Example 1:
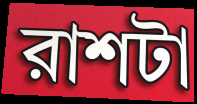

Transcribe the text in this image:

রাশটা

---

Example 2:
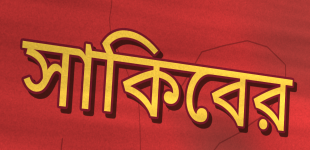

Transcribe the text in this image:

সাকিবের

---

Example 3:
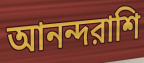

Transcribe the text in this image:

আনন্দরাশি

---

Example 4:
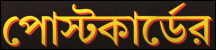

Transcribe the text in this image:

পোস্টকার্ডের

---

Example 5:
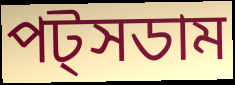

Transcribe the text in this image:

পট্‌সডাম